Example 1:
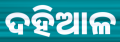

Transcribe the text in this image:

ଦହିଆଳ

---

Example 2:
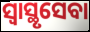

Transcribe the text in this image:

ସ୍ୱାସ୍ଥୃସେବା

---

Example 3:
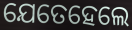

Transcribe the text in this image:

ଯେତେହେଲେ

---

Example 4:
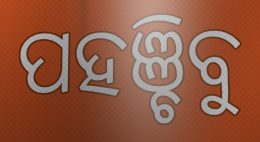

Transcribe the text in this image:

ପହଞ୍ଚିବୁ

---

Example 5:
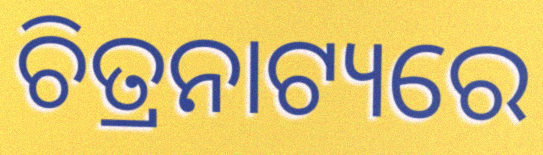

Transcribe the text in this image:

ଚିତ୍ରନାଟ୍ୟରେ